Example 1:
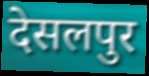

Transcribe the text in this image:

देसलपुर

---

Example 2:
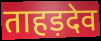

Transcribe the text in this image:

ताहड़देव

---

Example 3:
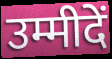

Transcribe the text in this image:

उम्‍मीदें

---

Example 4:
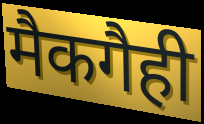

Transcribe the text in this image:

मैकगैही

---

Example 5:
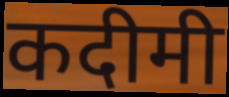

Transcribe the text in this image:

कदीमी